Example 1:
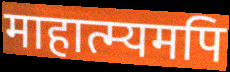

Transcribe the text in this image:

माहात्म्यमपि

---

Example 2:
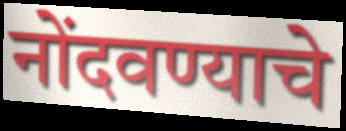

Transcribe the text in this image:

नोंदवण्याचे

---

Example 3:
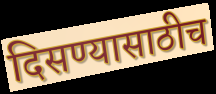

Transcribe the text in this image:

दिसण्यासाठीच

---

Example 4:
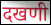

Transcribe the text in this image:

दखणी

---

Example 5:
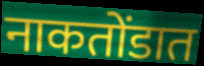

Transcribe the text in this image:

नाकतोंडात